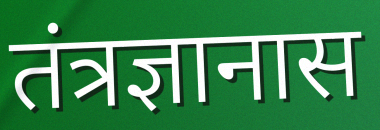
तंत्रज्ञानास